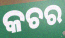
କଚର